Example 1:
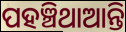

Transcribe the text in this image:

ପହଞ୍ଚିଥାଆନ୍ତି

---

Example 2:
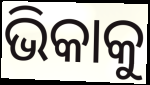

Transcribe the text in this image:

ଭିକାକୁ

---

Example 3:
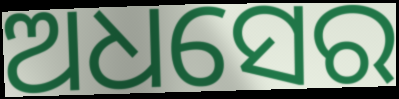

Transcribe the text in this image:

ଅଧସେର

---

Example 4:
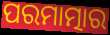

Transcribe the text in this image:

ପରମାତ୍ମାର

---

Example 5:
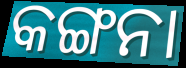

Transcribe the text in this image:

କଙ୍ଗନା